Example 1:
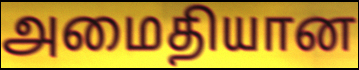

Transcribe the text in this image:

அமைதியான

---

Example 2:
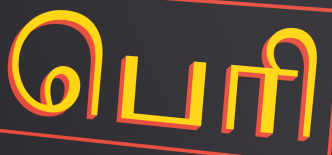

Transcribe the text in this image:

பெரி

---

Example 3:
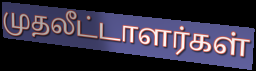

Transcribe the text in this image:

முதலீட்டாளர்கள்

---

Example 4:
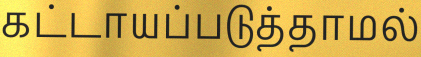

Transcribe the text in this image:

கட்டாயப்படுத்தாமல்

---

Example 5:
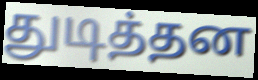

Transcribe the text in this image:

துடித்தன